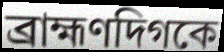
ব্রাহ্মণদিগকে